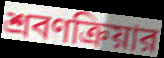
শ্রবণক্রিয়ার